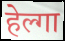
हेल्गा